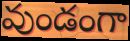
వుండంగా